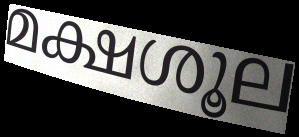
മക്ഷശൂല